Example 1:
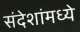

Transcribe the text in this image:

संदेशांमध्ये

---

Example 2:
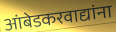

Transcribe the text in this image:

आंबेडकरवाद्यांना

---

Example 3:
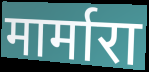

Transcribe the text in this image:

मार्मारा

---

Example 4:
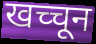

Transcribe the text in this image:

खच्चून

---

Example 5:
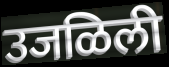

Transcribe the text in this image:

उजळिली